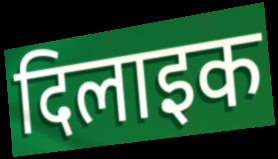
दिलाइक